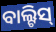
ବାଲ୍ଟିସ୍